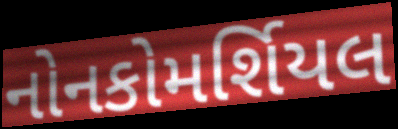
નોનકોમર્શિયલ